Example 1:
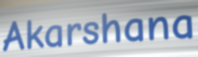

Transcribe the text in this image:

Akarshana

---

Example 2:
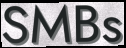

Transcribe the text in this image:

SMBs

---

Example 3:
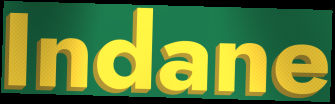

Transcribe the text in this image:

Indane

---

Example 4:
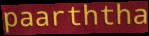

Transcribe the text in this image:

paarththa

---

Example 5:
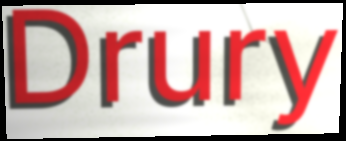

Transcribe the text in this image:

Drury